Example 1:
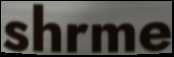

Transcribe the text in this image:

shrme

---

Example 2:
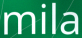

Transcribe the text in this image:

mila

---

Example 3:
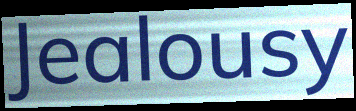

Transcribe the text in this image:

Jealousy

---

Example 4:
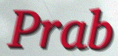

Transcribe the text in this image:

Prab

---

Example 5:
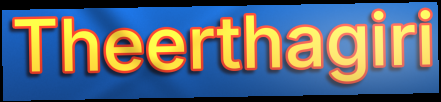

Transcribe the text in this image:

Theerthagiri